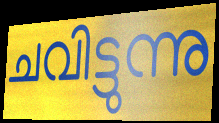
ചവിട്ടുന്നു